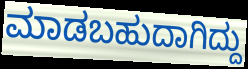
ಮಾಡಬಹುದಾಗಿದ್ದು